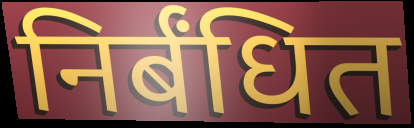
निर्बंधित